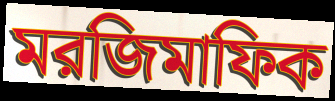
মরজিমাফিক